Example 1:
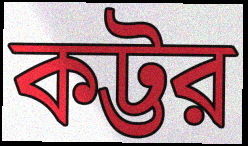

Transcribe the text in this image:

কট্টর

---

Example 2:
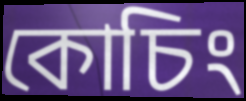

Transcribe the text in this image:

কোচিং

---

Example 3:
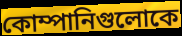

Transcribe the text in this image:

কোম্পানিগুলোকে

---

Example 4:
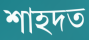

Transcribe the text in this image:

শাহদত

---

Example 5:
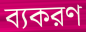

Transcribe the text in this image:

ব্যকরণ